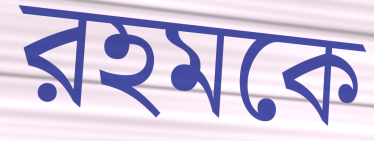
রহমকে